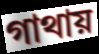
গাথায়